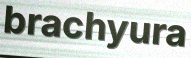
brachyura